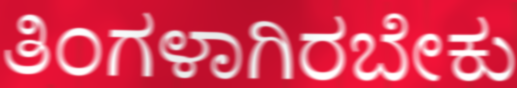
ತಿಂಗಳಾಗಿರಬೇಕು